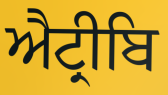
ਐਟ੍ਰੀਬਿ